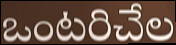
ఒంటరిచేల